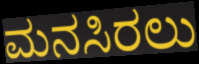
ಮನಸಿರಲು